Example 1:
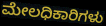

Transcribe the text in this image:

ಮೇಲಧಿಕಾರಿಗಳು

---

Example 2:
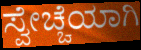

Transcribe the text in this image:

ಸ್ವೇಚ್ಚೆಯಾಗಿ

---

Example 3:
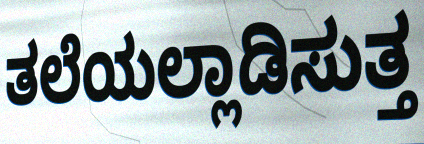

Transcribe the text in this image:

ತಲೆಯಲ್ಲಾಡಿಸುತ್ತ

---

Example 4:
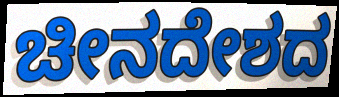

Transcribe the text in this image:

ಚೀನದೇಶದ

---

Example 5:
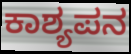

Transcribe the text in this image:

ಕಾಶ್ಯಪನ